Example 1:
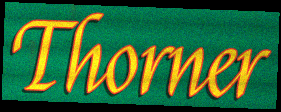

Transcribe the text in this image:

Thorner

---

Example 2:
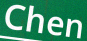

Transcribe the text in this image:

Chen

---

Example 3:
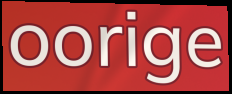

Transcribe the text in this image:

oorige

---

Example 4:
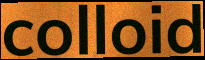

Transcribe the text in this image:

colloid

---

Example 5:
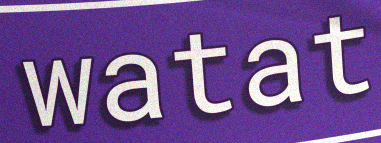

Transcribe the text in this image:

watat